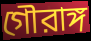
গৌরাঙ্গ